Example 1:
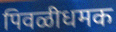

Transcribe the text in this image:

पिवळीधमक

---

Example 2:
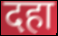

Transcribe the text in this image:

दहा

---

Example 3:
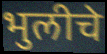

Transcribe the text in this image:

भुलीचे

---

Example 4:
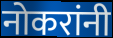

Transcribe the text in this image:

नोकरांनी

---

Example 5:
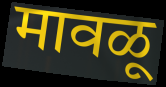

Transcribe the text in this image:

मावळू